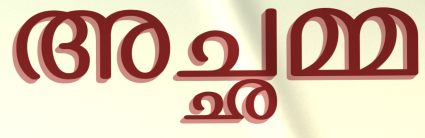
അച്ഛമ്മ